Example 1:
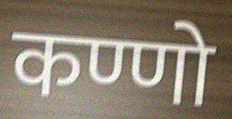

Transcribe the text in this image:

कण्णो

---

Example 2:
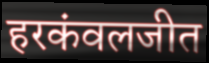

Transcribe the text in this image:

हरकंवलजीत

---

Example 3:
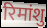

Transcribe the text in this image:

रिमांशु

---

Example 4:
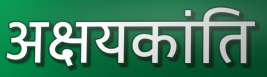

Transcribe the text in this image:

अक्षयकांति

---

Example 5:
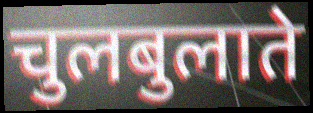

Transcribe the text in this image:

चुलबुलाते